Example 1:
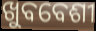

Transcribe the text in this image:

ଖୁବବେଶୀ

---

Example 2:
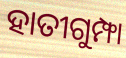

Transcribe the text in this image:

ହାତୀଗୁମ୍ଫା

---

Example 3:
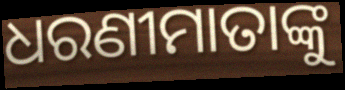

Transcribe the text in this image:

ଧରଣୀମାତାଙ୍କୁ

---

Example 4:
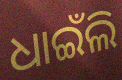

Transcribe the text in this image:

ଧାଇଁଲି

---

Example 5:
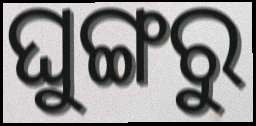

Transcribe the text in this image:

ଘୁଙ୍ଗରୁ